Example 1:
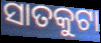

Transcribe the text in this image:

ସାତକୁଟା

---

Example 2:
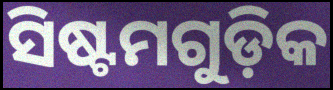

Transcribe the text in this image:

ସିଷ୍ଟମଗୁଡ଼ିକ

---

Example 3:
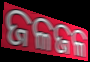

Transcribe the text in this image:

ଜଳଜଳ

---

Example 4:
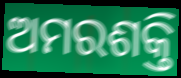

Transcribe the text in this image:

ଅମରଶକ୍ତି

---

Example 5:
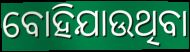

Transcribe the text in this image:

ବୋହିଯାଉଥିବା